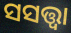
ସସତ୍ତ୍ୱା